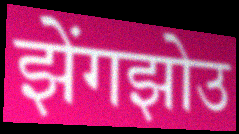
झेंगझोउ